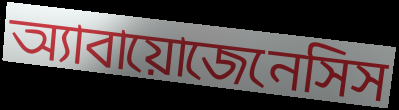
অ্যাবায়োজেনেসিস